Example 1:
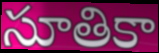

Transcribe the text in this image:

సూతికా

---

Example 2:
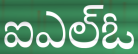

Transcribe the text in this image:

ఐఎల్ఓ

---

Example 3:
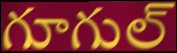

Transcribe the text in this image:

గూగుల్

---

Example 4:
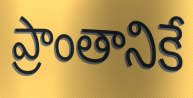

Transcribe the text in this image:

ప్రాంతానికే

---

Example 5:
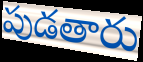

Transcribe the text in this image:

పుడతారు